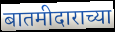
बातमीदाराच्या